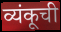
व्यंकूची